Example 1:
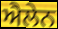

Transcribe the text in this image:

ਐਲੇਨ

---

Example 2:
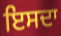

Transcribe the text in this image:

ਇਸਦਾ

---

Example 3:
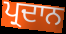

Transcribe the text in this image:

ਪ੍ਰਦਾਨ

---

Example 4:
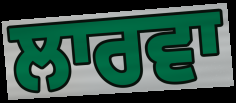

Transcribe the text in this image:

ਲਾਰਵਾ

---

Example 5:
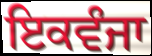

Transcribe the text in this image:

ਇਕਵੰਜਾ